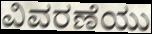
ವಿವರಣೆಯು